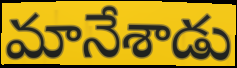
మానేశాడు